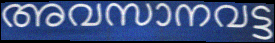
അവസാനവട്ട